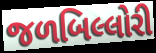
જળબિલ્લોરી